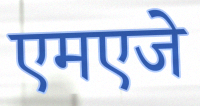
एमएजे